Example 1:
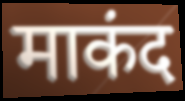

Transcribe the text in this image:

माकंद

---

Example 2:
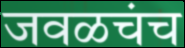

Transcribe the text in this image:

जवळचंच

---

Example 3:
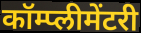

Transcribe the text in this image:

कॉम्प्लीमेंटरी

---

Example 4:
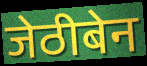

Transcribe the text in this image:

जेठीबेन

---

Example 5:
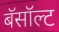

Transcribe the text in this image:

बॅसॉल्ट